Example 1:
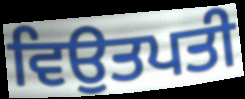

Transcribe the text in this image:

ਵਿਉਤਪਤੀ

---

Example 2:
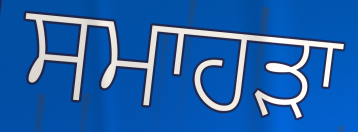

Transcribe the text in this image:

ਸਮਾਹੜਾ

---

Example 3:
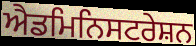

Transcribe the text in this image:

ਐਡਮਿਨਿਸਟਰੇਸ਼ਨ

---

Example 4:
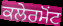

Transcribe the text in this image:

ਕਲੇਰਮੋਂਟ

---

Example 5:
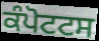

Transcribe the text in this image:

ਕੰਪੋਟਟਸ